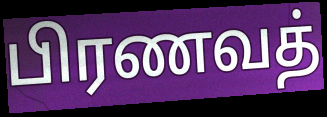
பிரணவத்